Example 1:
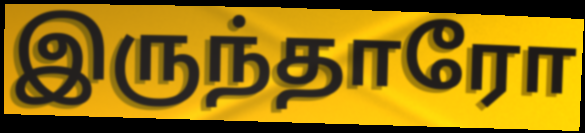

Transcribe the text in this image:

இருந்தாரோ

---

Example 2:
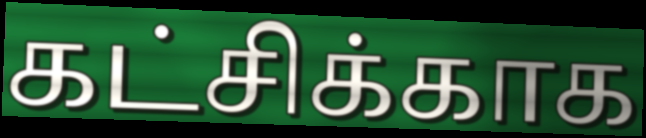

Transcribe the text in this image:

கட்சிக்காக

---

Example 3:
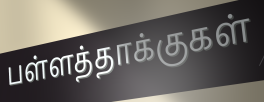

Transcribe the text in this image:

பள்ளத்தாக்குகள்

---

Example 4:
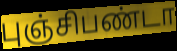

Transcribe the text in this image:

புஞ்சிபண்டா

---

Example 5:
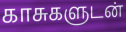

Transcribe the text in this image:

காசுகளுடன்